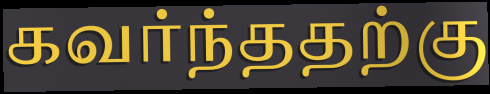
கவர்ந்ததற்கு